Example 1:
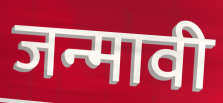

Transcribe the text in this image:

जन्मावी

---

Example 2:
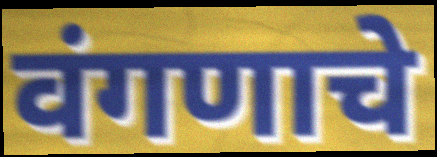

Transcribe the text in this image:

वंगणाचे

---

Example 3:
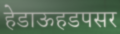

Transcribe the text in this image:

हेडाऊहडपसर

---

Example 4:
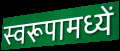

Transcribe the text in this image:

स्वरूपामध्यें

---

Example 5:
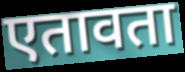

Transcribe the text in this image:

एतावता